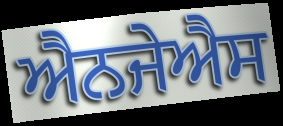
ਐਨਜੇਐਸ